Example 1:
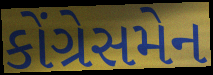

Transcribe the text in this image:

કોંગ્રેસમેન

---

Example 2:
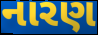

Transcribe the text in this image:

નારણ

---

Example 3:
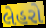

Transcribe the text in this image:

લેહરો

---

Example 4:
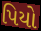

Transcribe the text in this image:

પિયો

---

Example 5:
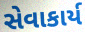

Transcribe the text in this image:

સેવાકાર્ય